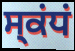
ਸ੍ਕਂਧਂ